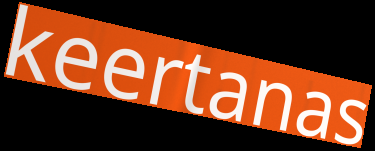
keertanas